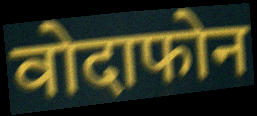
वोदाफोन